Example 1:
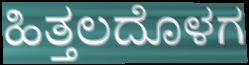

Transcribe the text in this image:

ಹಿತ್ತಲದೊಳಗ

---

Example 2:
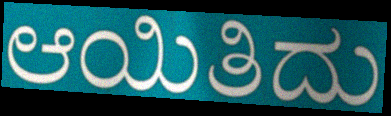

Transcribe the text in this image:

ಆಯಿತಿದು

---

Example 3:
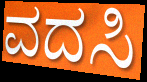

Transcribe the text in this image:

ವದಸಿ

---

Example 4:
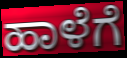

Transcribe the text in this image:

ಹಾಳೆಗೆ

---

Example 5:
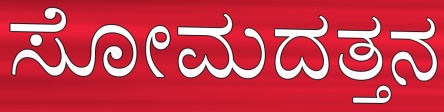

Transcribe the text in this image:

ಸೋಮದತ್ತನ